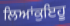
ਲਿਆਂਕੁਇਹੂ